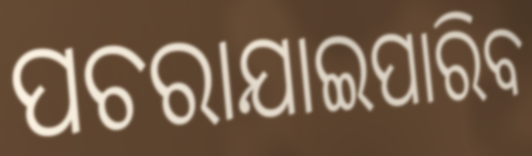
ପଚରାଯାଇପାରିବ